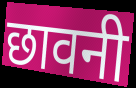
छावनी